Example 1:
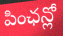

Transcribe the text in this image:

పింఛన్లో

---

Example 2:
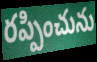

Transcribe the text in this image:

రప్పించును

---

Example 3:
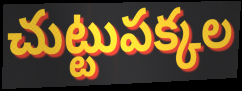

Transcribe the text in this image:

చుట్టుపక్కల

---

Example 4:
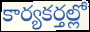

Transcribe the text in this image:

కార్యకర్తల్లో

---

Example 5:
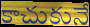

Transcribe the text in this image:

కాచుకునే